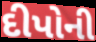
દીપોની